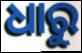
ଧାରୁ